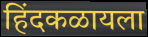
हिंदकळायला